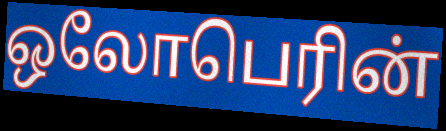
ஒலோபெரின்